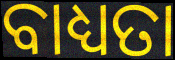
ବାଧ୍ୟତା